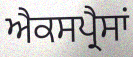
ਐਕਸਪ੍ਰੈਸਾਂ